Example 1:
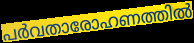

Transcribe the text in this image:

പർവതാരോഹണത്തിൽ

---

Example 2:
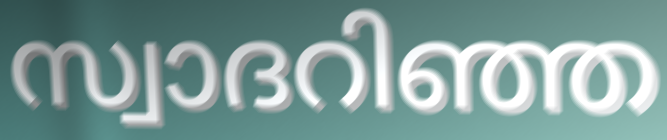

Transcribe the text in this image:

സ്വാദറിഞ്ഞ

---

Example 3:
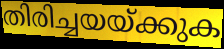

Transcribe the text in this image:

തിരിച്ചയയ്ക്കുക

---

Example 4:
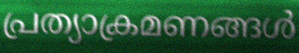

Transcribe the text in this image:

പ്രത്യാക്രമണങ്ങൾ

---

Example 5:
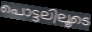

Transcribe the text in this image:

പൊട്ടലിലൂടെ